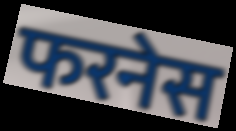
फरनेस